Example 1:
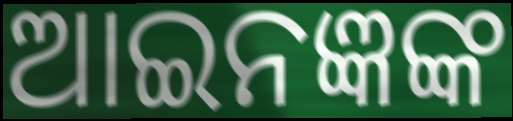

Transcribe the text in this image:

ଆଇନଜ୍ଞଙ୍କ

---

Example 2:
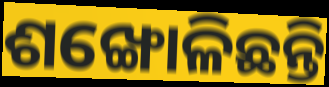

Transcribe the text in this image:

ଶଙ୍ଖୋଳିଛନ୍ତି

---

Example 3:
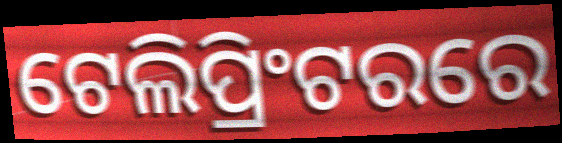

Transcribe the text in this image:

ଟେଲିପ୍ରିଂଟରରେ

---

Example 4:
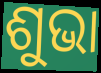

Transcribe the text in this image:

ଶୁଭା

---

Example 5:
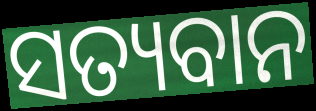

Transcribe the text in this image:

ସତ୍ୟବାନ